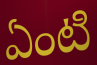
ఏంటి